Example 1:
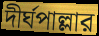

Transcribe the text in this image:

দীর্ঘপাল্লার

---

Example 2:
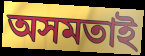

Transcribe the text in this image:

অসমতাই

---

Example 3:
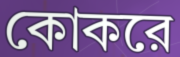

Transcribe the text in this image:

কোকরে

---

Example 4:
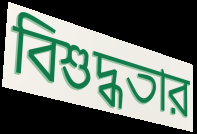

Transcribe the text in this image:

বিশুদ্ধতার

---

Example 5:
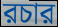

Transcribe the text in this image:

রচার